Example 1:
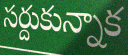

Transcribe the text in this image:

సర్దుకున్నాక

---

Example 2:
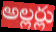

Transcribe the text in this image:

అల్లర్లు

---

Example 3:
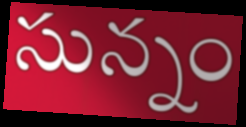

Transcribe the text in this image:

సున్నం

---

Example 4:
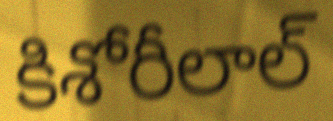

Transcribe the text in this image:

కిశోరీలాల్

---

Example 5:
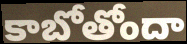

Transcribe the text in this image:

కాబోతోందా